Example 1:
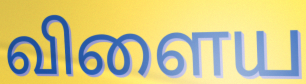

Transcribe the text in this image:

விளைய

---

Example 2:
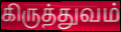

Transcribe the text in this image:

கிருத்துவம்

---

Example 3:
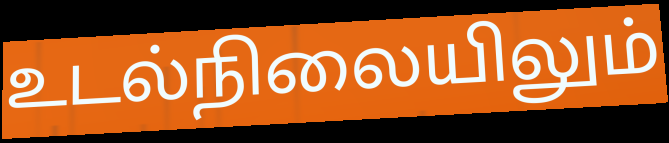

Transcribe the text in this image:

உடல்நிலையிலும்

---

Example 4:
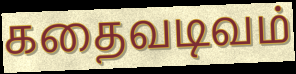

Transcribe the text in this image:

கதைவடிவம்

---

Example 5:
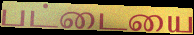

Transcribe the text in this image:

பட்டையை